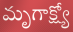
మృగాక్ష్యో